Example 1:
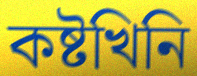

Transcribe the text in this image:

কষ্টখিনি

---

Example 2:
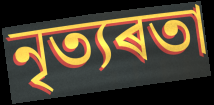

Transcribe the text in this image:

নৃত্যৰতা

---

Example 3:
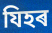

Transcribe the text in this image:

যিহৰ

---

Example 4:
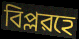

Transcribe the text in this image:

বিপ্লৱহে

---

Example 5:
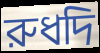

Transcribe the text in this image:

ৰুধদি